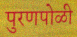
पुरणपोळी